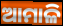
ଆମାଳି